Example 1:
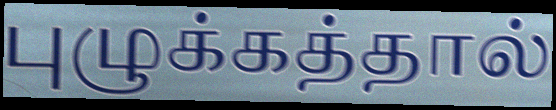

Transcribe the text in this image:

புழுக்கத்தால்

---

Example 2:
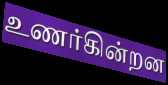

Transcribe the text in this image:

உணர்கின்றன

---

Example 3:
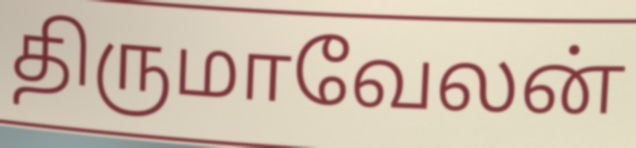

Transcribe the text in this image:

திருமாவேலன்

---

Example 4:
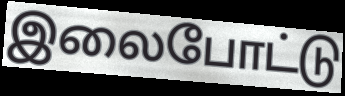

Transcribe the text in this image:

இலைபோட்டு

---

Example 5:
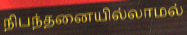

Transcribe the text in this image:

நிபந்தனையில்லாமல்